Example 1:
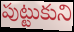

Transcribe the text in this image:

పుట్టుకుని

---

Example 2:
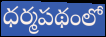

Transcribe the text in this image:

ధర్మపథంలో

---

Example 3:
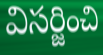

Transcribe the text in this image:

విసర్జించి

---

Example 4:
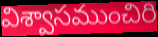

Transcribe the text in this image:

విశ్వాసముంచిరి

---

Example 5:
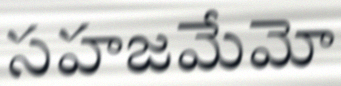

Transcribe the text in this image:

సహజమేమో